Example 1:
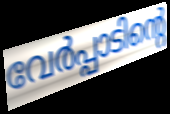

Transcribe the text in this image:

വേർപ്പാടിന്റെ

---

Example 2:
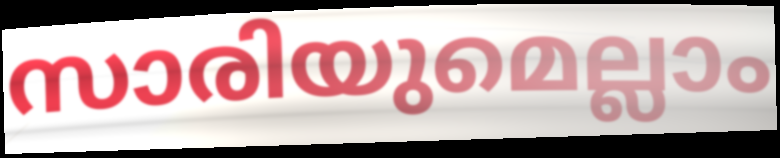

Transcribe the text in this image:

സാരിയുമെല്ലാം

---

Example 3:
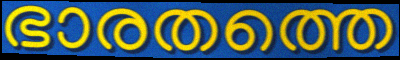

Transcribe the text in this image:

ഭാരതത്തെ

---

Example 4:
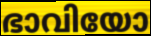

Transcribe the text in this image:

ഭാവിയോ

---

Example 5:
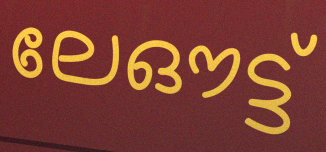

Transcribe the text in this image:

ലേഔട്ട്